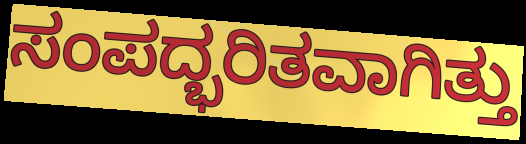
ಸಂಪದ್ಭರಿತವಾಗಿತ್ತು